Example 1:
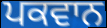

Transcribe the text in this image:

ਪਕਵਾਨ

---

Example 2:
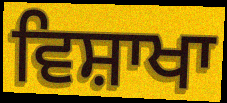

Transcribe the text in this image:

ਵਿਸ਼ਾਖਾ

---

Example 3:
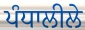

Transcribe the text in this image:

ਪੰਧਾਲੀਲੇ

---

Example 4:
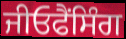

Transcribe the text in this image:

ਜੀਓਫੈਂਸਿੰਗ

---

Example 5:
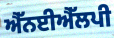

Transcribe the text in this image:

ਐੱਨਈਐੱਲਪੀ